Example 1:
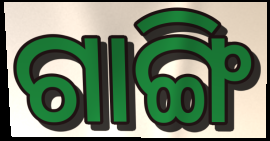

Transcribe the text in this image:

ଗାଙ୍ଗି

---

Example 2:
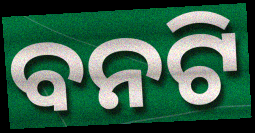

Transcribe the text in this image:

ବନଟି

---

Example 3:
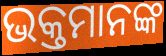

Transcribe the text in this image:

ଭକ୍ତମାନଙ୍କ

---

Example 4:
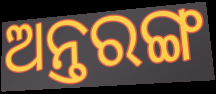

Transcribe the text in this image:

ଅନ୍ତରଙ୍ଗ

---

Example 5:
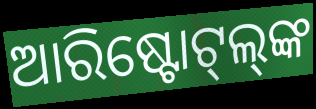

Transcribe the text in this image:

ଆରିଷ୍ଟୋଟ୍‌ଲ୍‌ଙ୍କ